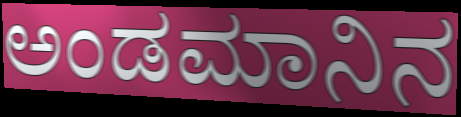
ಅಂಡಮಾನಿನ